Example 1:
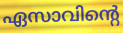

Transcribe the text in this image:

ഏസാവിന്റെ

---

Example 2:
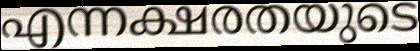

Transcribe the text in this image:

എന്നക്ഷരതയുടെ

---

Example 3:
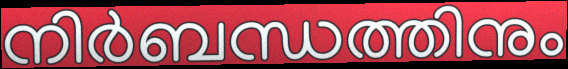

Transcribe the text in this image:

നിർബന്ധത്തിനും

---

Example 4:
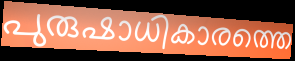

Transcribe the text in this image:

പുരുഷാധികാരത്തെ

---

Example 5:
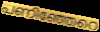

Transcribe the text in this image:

പണിഞ്ഞേറെ